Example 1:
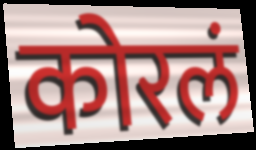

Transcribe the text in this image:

कोरलं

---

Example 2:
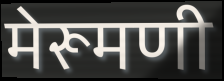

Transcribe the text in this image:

मेरूमणी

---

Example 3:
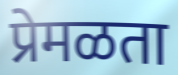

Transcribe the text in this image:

प्रेमळता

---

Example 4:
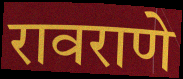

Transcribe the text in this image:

रावराणे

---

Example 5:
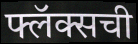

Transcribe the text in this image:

फ्लॅक्सची